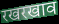
रखरखाव